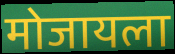
मोजायला